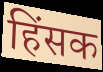
हिंसक